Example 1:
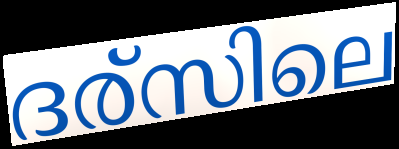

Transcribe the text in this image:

ദര്സിലെ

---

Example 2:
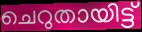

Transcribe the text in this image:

ചെറുതായിട്ട്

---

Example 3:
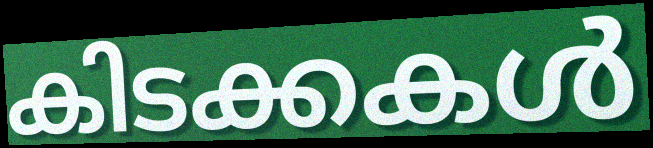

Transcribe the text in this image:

കിടക്കകൾ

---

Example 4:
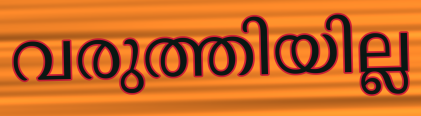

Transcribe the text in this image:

വരുത്തിയില്ല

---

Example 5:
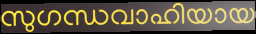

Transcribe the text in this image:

സുഗന്ധവാഹിയായ